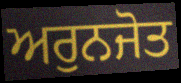
ਅਰੁਨਜੋਤ